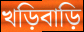
খড়িবাড়ি